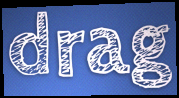
drag